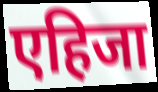
एहिजा